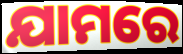
ଯାମରେ